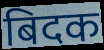
बिदक